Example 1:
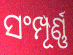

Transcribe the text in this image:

ସଂମ୍ପୂର୍ଣ୍ଣ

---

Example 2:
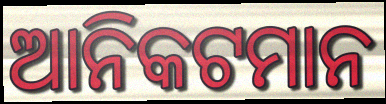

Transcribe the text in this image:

ଆନିକଟମାନ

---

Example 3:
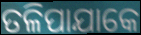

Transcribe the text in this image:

ତଳିପାଯାକେ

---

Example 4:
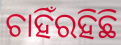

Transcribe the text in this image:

ଚାହିଁରହିଛି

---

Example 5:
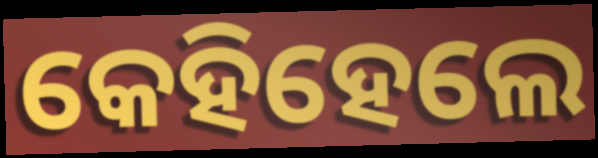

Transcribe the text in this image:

କେହିହେଲେ